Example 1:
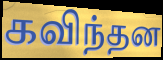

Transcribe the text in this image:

கவிந்தன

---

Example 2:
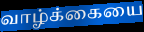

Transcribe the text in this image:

வாழ்க்கையை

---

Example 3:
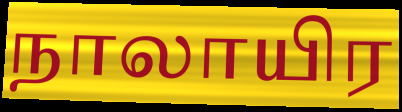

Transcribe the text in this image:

நாலாயிர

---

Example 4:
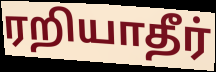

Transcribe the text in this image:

ரறியாதீர்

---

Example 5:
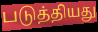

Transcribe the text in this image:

படுத்தியது